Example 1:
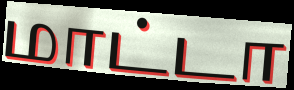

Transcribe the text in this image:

மாட்டா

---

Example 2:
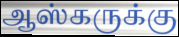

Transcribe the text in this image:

ஆஸ்கருக்கு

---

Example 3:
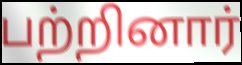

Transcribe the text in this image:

பற்றினார்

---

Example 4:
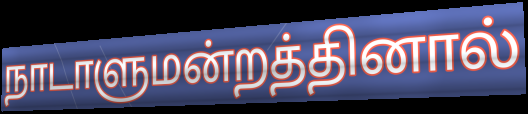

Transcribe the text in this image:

நாடாளுமன்றத்தினால்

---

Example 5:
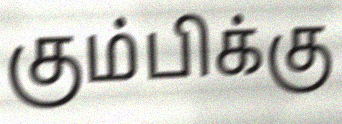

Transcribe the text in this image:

கும்பிக்கு